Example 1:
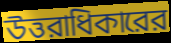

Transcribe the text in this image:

উত্তরাধিকারের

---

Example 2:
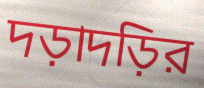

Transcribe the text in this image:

দড়াদড়ির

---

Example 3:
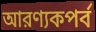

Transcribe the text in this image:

আরণ্যকপর্ব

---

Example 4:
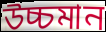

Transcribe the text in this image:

উচ্চমান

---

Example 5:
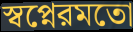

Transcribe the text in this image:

স্বপ্নেরমতো